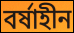
বর্ষাহীন